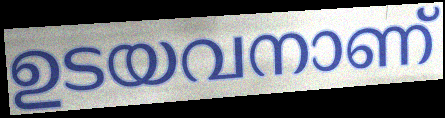
ഉടയവനാണ്